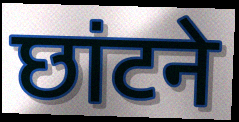
छांटने